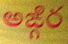
అఙ్గిర